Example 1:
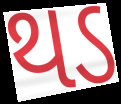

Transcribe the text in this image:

થડ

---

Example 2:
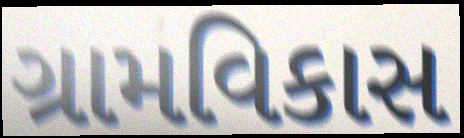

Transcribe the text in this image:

ગ્રામવિકાસ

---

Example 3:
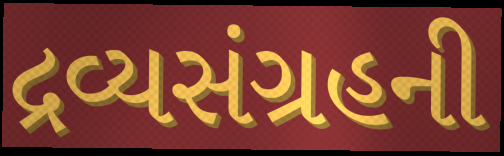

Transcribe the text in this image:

દ્રવ્યસંગ્રહની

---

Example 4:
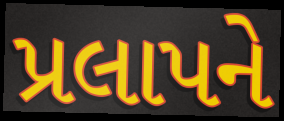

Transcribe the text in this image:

પ્રલાપને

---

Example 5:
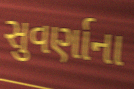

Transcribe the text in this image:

સુવર્ણાના